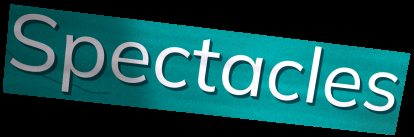
Spectacles